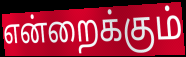
என்றைக்கும்